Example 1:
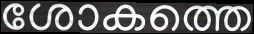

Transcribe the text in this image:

ശോകത്തെ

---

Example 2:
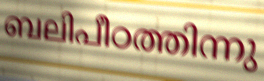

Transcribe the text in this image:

ബലിപീഠത്തിന്നു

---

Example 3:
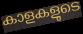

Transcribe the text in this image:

കാളകളുടെ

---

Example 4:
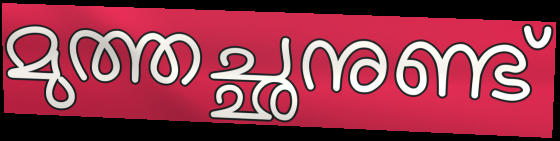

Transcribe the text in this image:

മുത്തച്ഛനുണ്ട്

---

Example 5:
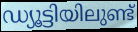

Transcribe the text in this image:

ഡ്യൂട്ടിയിലുണ്ട്